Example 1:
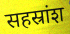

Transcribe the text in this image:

सहस्रांश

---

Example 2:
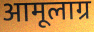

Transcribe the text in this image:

आमूलाग्र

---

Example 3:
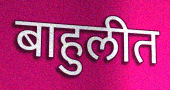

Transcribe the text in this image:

बाहुलीत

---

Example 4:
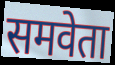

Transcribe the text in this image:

समवेता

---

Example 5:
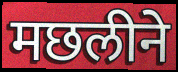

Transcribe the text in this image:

मछलीने